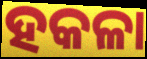
ହକଳା